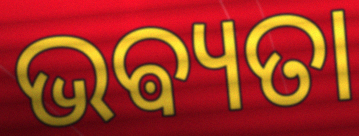
ଭଵ୍ୟତା